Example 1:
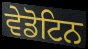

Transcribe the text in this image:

ਵੇਡੋਟਿਨ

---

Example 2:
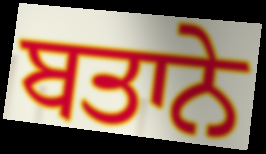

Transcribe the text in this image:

ਬਤਾਨੇ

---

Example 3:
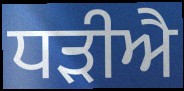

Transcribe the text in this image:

ਧੜੀਐ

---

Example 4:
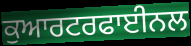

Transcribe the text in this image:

ਕੁਆਰਟਰਫਾਈਨਲ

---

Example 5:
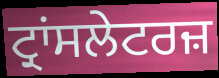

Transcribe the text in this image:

ਟ੍ਰਾਂਸਲੇਟਰਜ਼